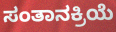
ಸಂತಾನಕ್ರಿಯೆ